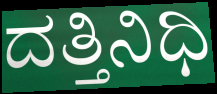
ದತ್ತಿನಿಧಿ